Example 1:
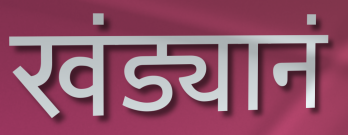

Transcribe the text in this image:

खंड्यानं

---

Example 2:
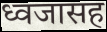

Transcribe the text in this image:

ध्वजासह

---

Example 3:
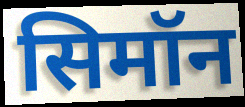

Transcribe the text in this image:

सिमॉन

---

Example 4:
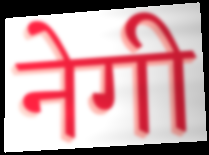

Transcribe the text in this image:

नेगी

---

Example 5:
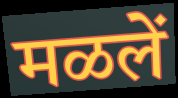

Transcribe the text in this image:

मळलें